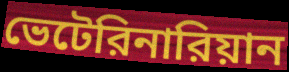
ভেটেরিনারিয়ান